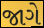
જાગે